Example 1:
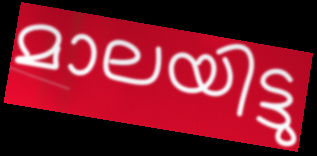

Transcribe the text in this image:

മാലയിട്ടു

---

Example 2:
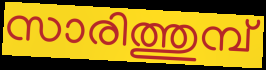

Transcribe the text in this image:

സാരിത്തുമ്പ്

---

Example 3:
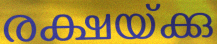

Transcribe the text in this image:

രക്ഷയ്‌ക്കു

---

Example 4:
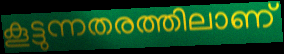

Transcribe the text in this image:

കൂട്ടുന്നതരത്തിലാണ്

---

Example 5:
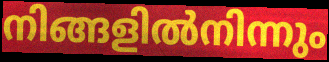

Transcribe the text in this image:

നിങ്ങളിൽനിന്നും